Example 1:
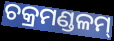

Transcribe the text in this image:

ଚକ୍ରମଣ୍ଡଳମ୍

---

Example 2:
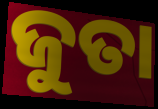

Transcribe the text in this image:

ଜୁତା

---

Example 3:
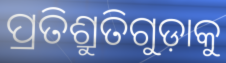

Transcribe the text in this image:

ପ୍ରତିଶ୍ରୁତିଗୁଡ଼ାକୁ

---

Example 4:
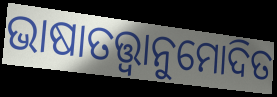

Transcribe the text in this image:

ଭାଷାତତ୍ତ୍ୱାନୁମୋଦିତ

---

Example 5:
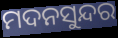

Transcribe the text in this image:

ମଦନସୁନ୍ଦର